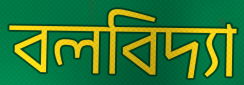
বলবিদ্যা